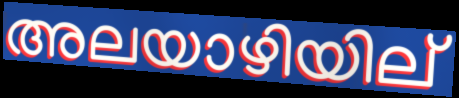
അലയാഴിയില്